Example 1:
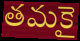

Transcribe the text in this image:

తమకై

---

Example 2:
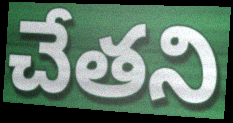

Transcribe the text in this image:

చేతని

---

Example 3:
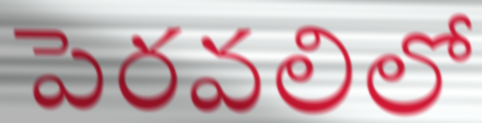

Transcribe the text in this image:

పెరవలిలో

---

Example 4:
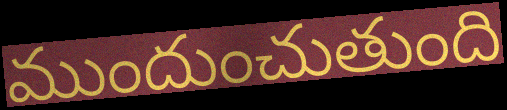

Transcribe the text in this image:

ముందుంచుతుంది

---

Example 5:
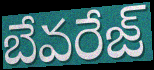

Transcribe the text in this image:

బేవరేజ్